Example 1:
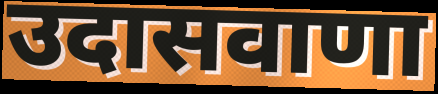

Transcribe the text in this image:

उदासवाणा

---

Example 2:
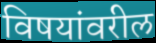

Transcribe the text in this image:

विषयांवरील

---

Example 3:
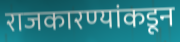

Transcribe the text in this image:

राजकारण्यांकडून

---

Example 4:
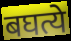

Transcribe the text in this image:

बघत्ये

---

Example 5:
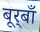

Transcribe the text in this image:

बूर्‌बाँ